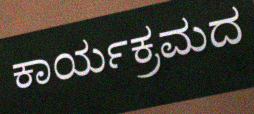
ಕಾರ್ಯಕ್ರಮದ